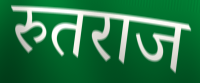
रुतराज